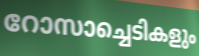
റോസാച്ചെടികളും